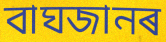
বাঘজানৰ